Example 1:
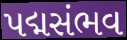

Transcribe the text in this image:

પદ્મસંભવ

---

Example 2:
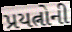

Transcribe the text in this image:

પ્રયત્નોની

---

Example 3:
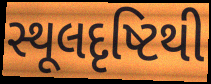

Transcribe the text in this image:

સ્થૂલદૃષ્ટિથી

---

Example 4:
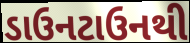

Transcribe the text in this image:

ડાઉનટાઉનથી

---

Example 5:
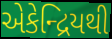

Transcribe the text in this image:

એકેન્દ્રિયથી